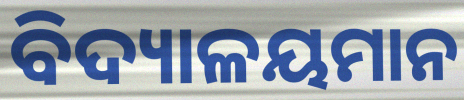
ବିଦ୍ୟାଳୟମାନ